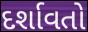
દર્શાવતો